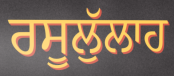
ਰਸੂਲੁੱਲਾਹ